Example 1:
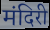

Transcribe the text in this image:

मंदिरी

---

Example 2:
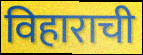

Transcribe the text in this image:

विहाराची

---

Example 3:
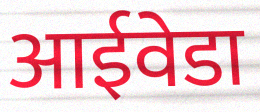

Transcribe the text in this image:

आईवेडा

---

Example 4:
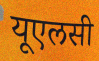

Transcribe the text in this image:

यूएलसी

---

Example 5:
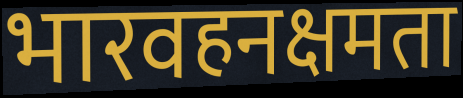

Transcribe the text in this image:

भारवहनक्षमता